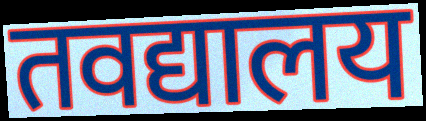
तवद्यालय